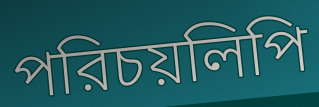
পরিচয়লিপি